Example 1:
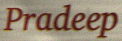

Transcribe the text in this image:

Pradeep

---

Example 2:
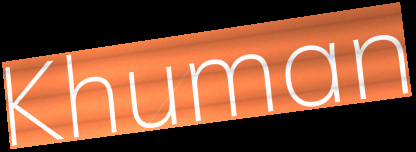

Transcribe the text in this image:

Khuman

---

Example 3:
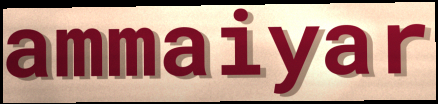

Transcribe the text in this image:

ammaiyar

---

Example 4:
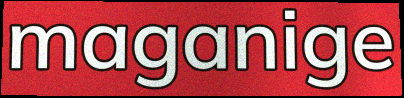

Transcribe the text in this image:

maganige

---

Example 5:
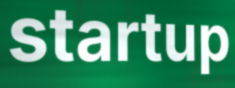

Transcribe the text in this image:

startup